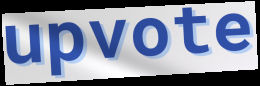
upvote